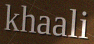
khaali